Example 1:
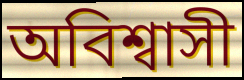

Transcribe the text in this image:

অবিশ্বাসী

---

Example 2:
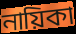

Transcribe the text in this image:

নায়িকা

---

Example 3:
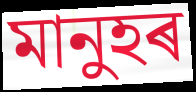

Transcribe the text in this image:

মানুহৰ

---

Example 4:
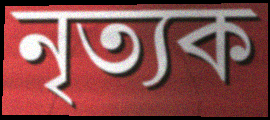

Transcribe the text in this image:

নৃত্যক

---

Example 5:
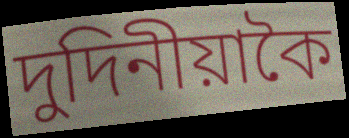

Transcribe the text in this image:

দুদিনীয়াকৈ